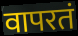
वापरतं